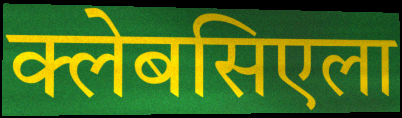
क्लेबसिएला